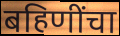
बहिणींचा